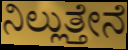
ನಿಲ್ಲುತ್ತೇನೆ